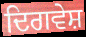
ਦਿਗਵੇਸ਼